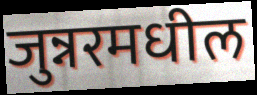
जुन्नरमधील